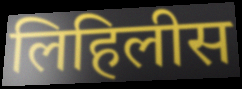
लिहिलीस